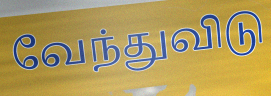
வேந்துவிடு